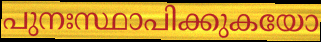
പുനഃസ്ഥാപിക്കുകയോ